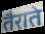
तैराते